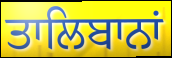
ਤਾਲਿਬਾਨਾਂ